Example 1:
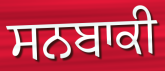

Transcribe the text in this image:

ਸਨਬਾਕੀ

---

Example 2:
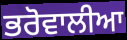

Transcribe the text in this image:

ਭਰੋਵਾਲੀਆ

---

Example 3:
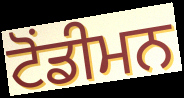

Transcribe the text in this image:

ਟੋਂਡੀਮਨ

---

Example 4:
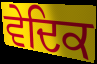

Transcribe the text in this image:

ਵੇਦਿਕ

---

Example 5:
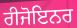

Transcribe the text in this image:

ਰੀਜੋਇਨਰ